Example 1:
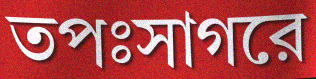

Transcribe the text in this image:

তপঃসাগরে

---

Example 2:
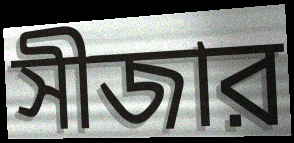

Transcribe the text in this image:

সীজার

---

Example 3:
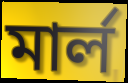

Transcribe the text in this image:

মার্ল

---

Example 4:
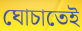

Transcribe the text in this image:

ঘোচাতেই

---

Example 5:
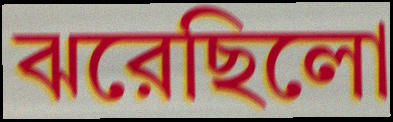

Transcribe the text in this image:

ঝরেছিলো